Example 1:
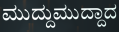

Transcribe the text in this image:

ಮುದ್ದುಮುದ್ದಾದ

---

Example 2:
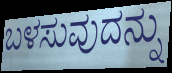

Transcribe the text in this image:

ಬಳಸುವುದನ್ನು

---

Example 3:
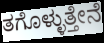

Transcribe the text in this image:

ತಗೊಳ್ಳುತ್ತೇನೆ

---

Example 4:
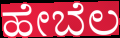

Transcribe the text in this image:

ಹೇಬೆಲ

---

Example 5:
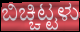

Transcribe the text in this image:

ಬಿಚ್ಚಿಟ್ಟಳು